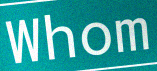
Whom